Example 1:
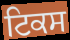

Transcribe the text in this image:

ਟਿਕਸ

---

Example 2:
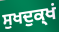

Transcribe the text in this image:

ਸੁਖਦੁਕ੍ਖਂ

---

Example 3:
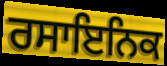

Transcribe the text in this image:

ਰਸਾਇਨਿਕ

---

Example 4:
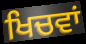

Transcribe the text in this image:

ਖਿਚਵਾਂ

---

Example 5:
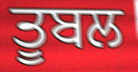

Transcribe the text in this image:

ਤੂਬਲ